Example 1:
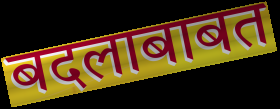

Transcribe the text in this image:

बदलाबाबत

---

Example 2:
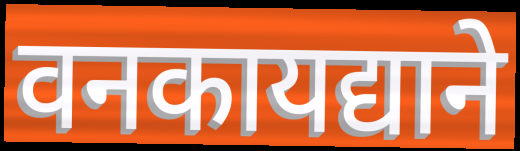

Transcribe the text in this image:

वनकायद्याने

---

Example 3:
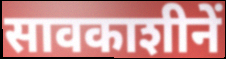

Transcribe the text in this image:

सावकाशीनें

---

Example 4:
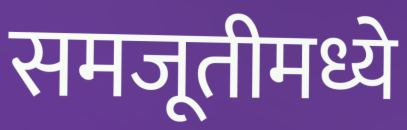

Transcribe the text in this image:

समजूतीमध्ये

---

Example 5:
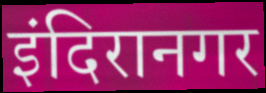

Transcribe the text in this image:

इंदिरानगर